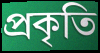
প্ৰকৃতি